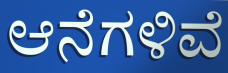
ಆನೆಗಳಿವೆ